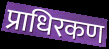
प्राधिरकण